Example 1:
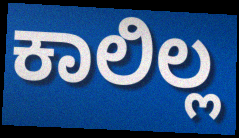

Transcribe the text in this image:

ಕಾಲಿಲ್ಲ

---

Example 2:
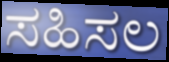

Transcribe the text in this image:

ಸಹಿಸಲ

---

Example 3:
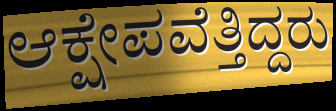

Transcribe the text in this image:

ಆಕ್ಷೇಪವೆತ್ತಿದ್ದರು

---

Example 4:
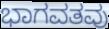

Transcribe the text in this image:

ಭಾಗವತವು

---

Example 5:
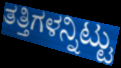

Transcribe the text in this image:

ತತ್ತಿಗಳನ್ನಿಟ್ಟು